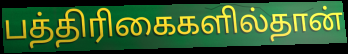
பத்திரிகைகளில்தான்